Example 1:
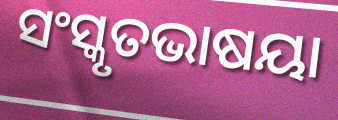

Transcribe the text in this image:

ସଂସ୍କୃତଭାଷୟା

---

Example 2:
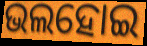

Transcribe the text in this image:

ଭଲହୋଇ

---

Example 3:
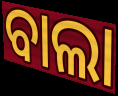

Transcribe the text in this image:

ବାଲା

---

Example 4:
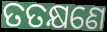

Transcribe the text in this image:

ତତକ୍ଷଣେ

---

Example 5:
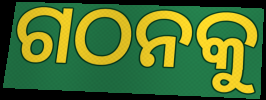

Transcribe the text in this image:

ଗଠନକୁ